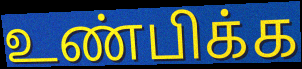
உண்பிக்க